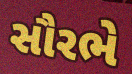
સૌરભે